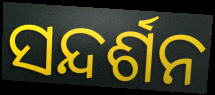
ସନ୍ଦର୍ଶନ